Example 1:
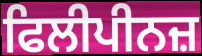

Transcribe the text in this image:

ਫਿਲੀਪੀਨਜ਼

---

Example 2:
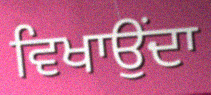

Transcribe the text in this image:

ਵਿਖਾਉਂਦਾ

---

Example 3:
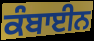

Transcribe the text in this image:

ਕੰਬਾਈਨ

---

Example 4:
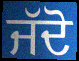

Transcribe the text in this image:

ਜੱਦੋ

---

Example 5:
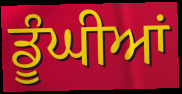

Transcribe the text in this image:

ਡੂੰਘੀਆਂ